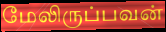
மேலிருப்பவன்